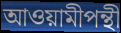
আওয়ামীপন্থী